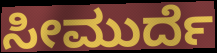
ಸೀಮುರ್ದೆ